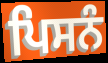
ਪਿਸਨੰ